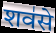
शव॑से